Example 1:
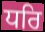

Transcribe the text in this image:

ਧਰਿ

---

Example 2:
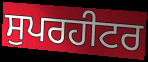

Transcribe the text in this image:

ਸੁਪਰਹੀਟਰ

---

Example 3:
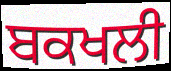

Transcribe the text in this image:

ਬਕਖਲੀ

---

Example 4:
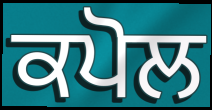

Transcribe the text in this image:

ਕਪੋਲ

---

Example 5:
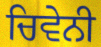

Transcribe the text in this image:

ਚਿਵੇਨੀ